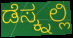
ಡೆಸ್ಕ್ನಲ್ಲಿ